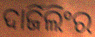
ଦାର୍ଜିଲିଂର